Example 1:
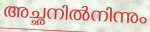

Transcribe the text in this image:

അച്ഛനിൽനിന്നും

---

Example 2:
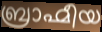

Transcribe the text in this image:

ബ്രാഹ്മീയ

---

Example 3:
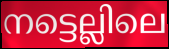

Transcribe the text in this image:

നട്ടെല്ലിലെ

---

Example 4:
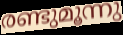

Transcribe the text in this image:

രണ്ടുമൂന്നു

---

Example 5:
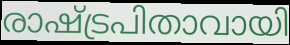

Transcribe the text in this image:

രാഷ്ട്രപിതാവായി